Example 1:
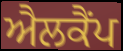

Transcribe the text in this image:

ਐਲਕੈਂਪ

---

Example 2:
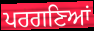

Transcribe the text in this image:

ਪਰਗਣਿਆਂ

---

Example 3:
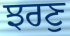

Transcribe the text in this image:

ਝਰਣੁ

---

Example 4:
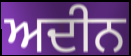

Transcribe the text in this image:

ਅਦੀਨ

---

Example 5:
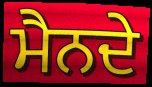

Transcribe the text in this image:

ਮੈਨਦੇ